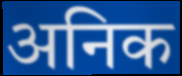
अनिक